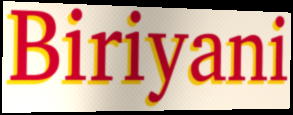
Biriyani